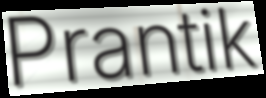
Prantik